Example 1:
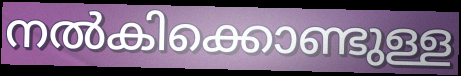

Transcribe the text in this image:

നൽകിക്കൊണ്ടുള്ള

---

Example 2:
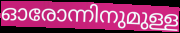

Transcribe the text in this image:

ഓരോന്നിനുമുള്ള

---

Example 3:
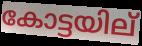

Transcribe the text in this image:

കോട്ടയില്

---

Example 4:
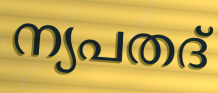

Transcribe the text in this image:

ന്യപതദ്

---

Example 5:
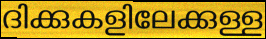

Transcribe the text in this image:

ദിക്കുകളിലേക്കുള്ള